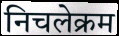
निचलेक्रम